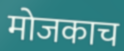
मोजकाच